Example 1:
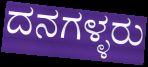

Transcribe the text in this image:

ದನಗಳ್ಳರು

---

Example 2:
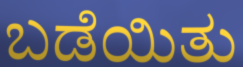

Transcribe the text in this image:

ಬಡೆಯಿತು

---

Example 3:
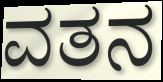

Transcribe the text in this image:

ವತನ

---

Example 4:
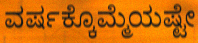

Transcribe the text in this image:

ವರ್ಷಕ್ಕೊಮ್ಮೆಯಷ್ಟೇ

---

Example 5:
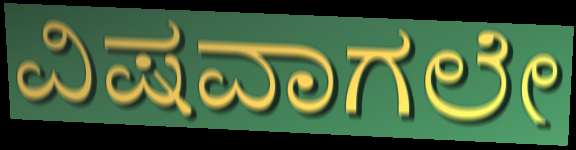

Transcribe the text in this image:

ವಿಷವಾಗಲೇ